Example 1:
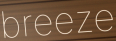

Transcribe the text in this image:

breeze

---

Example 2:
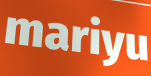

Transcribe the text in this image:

mariyu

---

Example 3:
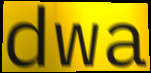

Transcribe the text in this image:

dwa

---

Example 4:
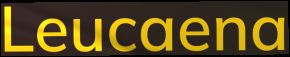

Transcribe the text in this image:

Leucaena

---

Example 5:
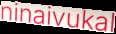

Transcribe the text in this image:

ninaivukal